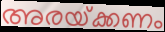
അരയ്‌ക്കണം